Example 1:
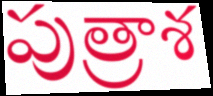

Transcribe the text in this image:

పుత్రాశ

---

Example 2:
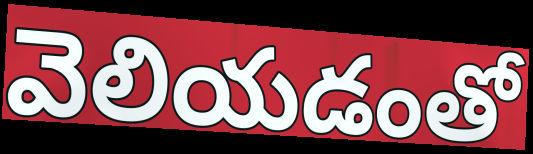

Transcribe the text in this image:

వెలియడంతో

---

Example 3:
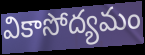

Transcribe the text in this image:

వికాసోద్యమం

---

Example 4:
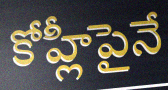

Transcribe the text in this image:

కోహ్లీపైనే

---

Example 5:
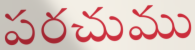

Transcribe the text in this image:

పరచుము